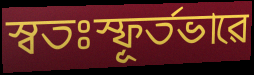
স্বতঃস্ফূৰ্তভাৱে